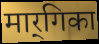
मार्गिका